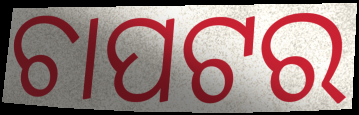
ଚାପଟର